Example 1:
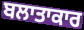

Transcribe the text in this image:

ਬਲਾਤਾਕਾਰ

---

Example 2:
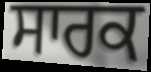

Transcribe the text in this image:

ਸਾਰਕ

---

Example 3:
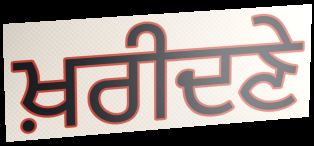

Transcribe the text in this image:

ਖ਼ਰੀਦਣੇ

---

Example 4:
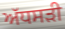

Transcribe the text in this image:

ਅੱਧਸੜੀ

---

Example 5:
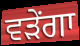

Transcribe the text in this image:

ਵੜੇਂਗਾ